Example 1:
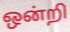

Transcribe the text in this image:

ஒன்றி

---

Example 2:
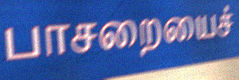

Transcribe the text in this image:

பாசறையைச்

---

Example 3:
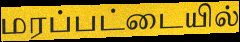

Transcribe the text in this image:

மரப்பட்டையில்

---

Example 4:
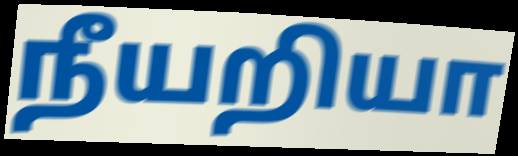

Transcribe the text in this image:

நீயறியா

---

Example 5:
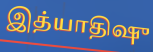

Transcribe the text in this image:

இத்யாதிஷு